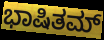
ಭಾಷಿತಮ್